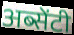
अब्सेंटी